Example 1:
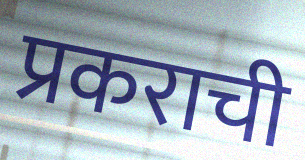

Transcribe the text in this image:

प्रकराची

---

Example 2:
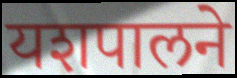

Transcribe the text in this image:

यशपालने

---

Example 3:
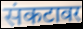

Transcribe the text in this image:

संकटावर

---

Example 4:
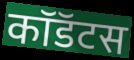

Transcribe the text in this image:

कॉडॅटस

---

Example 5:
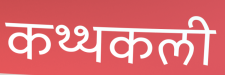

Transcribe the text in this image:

कथ्थकली